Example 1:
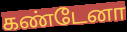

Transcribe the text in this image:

கண்டேனா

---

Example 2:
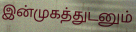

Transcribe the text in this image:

இன்முகத்துடனும்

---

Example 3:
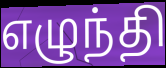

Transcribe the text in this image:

எழுந்தி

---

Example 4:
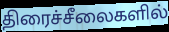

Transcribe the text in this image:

திரைச்சீலைகளில்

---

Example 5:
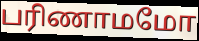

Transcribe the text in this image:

பரிணாமமோ